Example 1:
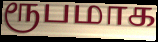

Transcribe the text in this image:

ரூபமாக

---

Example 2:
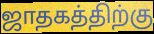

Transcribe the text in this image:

ஜாதகத்திற்கு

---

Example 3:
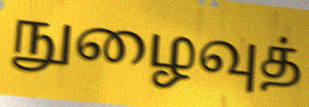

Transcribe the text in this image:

நுழைவுத்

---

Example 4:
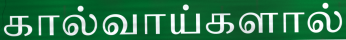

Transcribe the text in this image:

கால்வாய்களால்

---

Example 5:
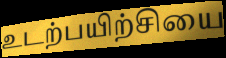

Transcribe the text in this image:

உடற்பயிற்சியை